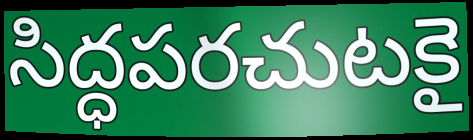
సిద్ధపరచుటకై